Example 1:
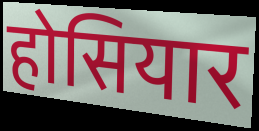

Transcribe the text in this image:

होसियार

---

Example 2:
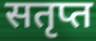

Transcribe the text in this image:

सतृप्त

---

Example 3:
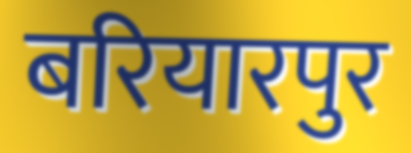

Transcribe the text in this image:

बरियारपुर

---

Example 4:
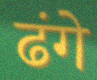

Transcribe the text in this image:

ढंगे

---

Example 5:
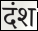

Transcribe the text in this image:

दंश